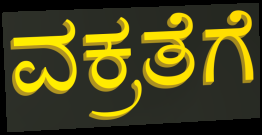
ವಕ್ರತೆಗೆ